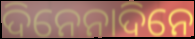
ଦିନେନାଦିନେ